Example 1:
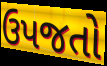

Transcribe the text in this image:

ઉપજતો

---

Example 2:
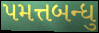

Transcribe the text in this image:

પમત્તબન્ધુ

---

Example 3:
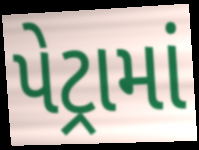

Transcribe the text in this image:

પેટ્રામાં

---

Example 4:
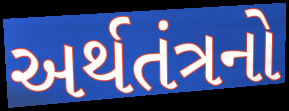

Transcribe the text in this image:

અર્થતંત્રનો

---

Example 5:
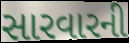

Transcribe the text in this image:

સારવારની